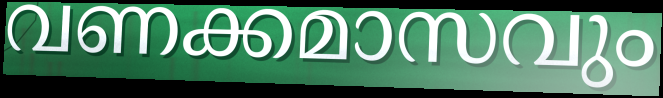
വണക്കമാസവും